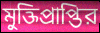
মুক্তিপ্রাপ্তির